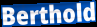
Berthold